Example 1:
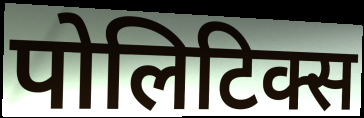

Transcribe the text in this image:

पोलिटिक्स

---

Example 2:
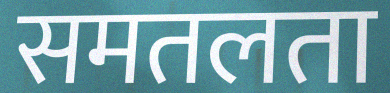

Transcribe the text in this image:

समतलता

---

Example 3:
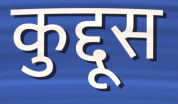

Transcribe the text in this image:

कुद्दूस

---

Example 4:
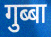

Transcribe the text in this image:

गुब्बा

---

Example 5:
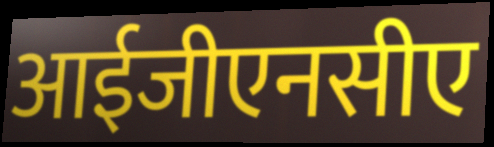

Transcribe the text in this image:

आईजीएनसीए